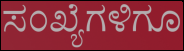
ಸಂಖ್ಯೆಗಳಿಗೂ